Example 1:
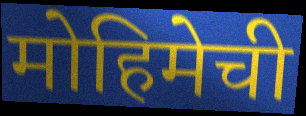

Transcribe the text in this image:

मोहिमेची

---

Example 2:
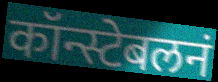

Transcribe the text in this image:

कॉन्स्टेबलनं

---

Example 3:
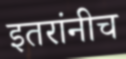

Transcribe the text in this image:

इतरांनीच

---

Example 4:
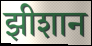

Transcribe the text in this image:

झीशान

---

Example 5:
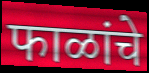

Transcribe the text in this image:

फाळांचे